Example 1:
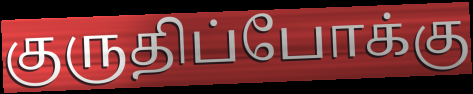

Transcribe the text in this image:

குருதிப்போக்கு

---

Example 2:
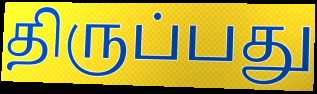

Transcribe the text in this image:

திருப்பது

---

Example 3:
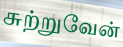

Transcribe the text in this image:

சுற்றுவேன்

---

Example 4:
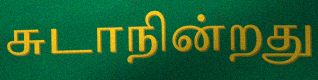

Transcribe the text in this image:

சுடாநின்றது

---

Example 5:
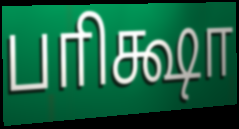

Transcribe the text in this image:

பரிக்ஷா